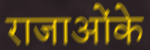
राजाओंके